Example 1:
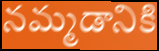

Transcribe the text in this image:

నమ్మడానికి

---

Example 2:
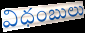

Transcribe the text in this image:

విధంబులు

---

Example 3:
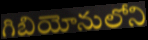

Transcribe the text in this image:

గిబియోనులోని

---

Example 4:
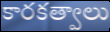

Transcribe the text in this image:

కారకత్వాలు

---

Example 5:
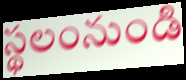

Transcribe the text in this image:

స్థలంనుండి